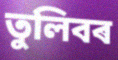
তুলিবৰ